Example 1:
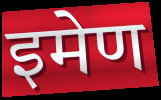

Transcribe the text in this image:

इमेण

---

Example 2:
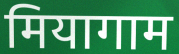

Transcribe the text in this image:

मियागाम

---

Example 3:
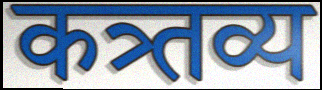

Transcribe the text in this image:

कत्र्तव्य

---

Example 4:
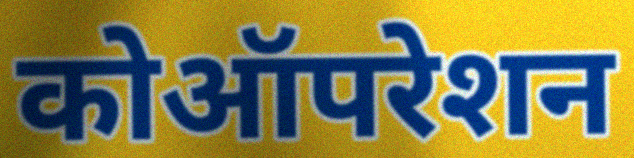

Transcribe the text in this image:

कोऑपरेशन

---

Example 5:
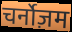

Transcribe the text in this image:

चर्नोज़म